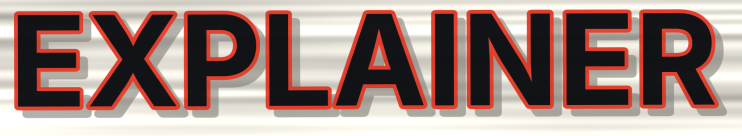
EXPLAINER